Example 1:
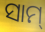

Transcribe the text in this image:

ସାମ୍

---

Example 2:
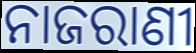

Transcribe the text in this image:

ନାଜରାଣୀ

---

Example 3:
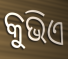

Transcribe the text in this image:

କୁଭିଏ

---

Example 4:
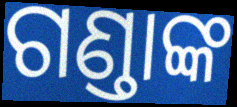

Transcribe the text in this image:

ଗଣ୍ଡାଙ୍କ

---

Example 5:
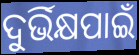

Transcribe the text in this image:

ଦୁର୍ଭିକ୍ଷପାଇଁ